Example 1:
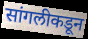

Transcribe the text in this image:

सांगलीकडून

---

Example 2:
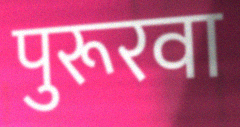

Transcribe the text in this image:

पुरूरवा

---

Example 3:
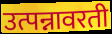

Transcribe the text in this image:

उत्पन्नावरती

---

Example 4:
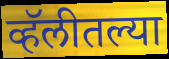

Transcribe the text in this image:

व्हॅलीतल्या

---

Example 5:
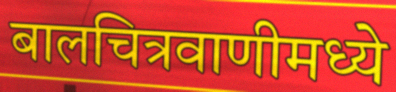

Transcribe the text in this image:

बालचित्रवाणीमध्ये